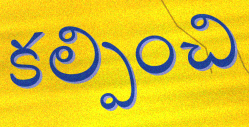
కల్పించి